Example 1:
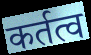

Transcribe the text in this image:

कर्तत्व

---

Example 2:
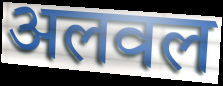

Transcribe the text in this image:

अलवल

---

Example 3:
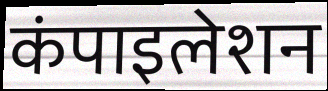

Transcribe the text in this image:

कंपाइलेशन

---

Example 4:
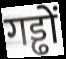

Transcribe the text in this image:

गड्ढों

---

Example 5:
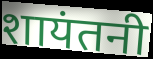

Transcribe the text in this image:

शायंतनी